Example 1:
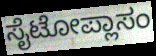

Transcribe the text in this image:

ಸೈಟೋಪ್ಲಾಸಂ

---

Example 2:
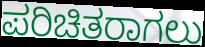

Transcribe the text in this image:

ಪರಿಚಿತರಾಗಲು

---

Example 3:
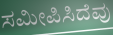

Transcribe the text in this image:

ಸಮೀಪಿಸಿದೆವು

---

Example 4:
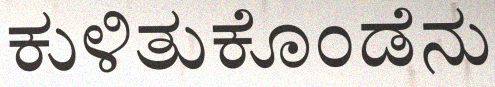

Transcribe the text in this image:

ಕುಳಿತುಕೊಂಡೆನು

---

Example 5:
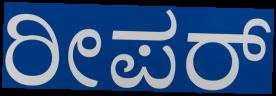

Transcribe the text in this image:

ರೀಪರ್